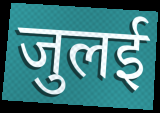
जुलई